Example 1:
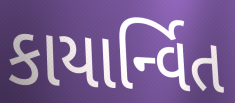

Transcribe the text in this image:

કાયાર્ન્વિત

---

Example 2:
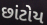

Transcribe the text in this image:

છાંટોય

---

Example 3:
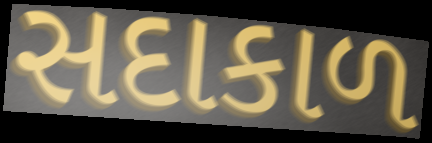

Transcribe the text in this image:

સદાકાળ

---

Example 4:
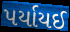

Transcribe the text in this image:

પર્યાયઈ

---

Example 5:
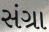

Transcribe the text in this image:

સંગ્રા